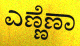
ಎಣ್ಣೆಣಾ